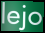
lejo